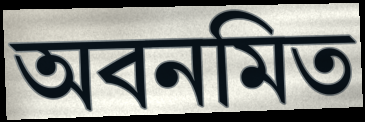
অবনমিত